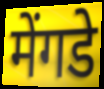
मेंगडे